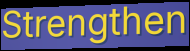
Strengthen